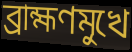
ব্রাহ্মণমুখে